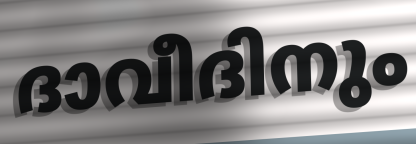
ദാവീദിനും